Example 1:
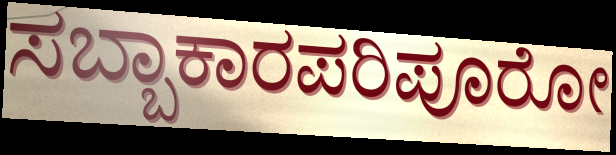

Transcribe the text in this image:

ಸಬ್ಬಾಕಾರಪರಿಪೂರೋ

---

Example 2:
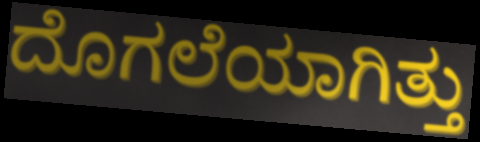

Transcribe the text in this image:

ದೊಗಲೆಯಾಗಿತ್ತು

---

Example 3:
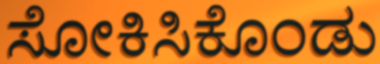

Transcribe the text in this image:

ಸೋಕಿಸಿಕೊಂಡು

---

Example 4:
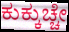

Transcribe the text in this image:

ಕುಕ್ಕುಚ್ಚೇ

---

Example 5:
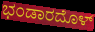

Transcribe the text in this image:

ಭಂಡಾರದೊಳ್